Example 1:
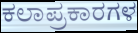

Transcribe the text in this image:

ಕಲಾಪ್ರಕಾರಗಳ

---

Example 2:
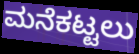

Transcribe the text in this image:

ಮನೆಕಟ್ಟಲು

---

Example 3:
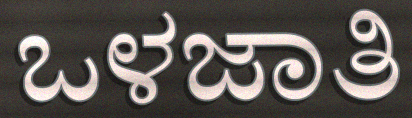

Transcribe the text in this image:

ಒಳಜಾತಿ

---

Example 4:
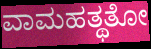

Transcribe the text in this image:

ವಾಮಹತ್ಥತೋ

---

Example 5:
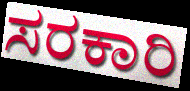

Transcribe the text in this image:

ಸರಕಾರಿ